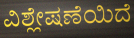
ವಿಶ್ಲೇಷಣೆಯಿದೆ